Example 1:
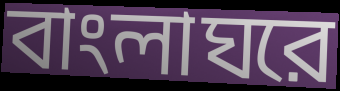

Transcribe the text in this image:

বাংলাঘরে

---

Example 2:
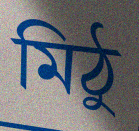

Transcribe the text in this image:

মিঠু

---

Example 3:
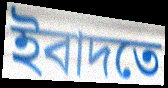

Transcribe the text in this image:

ইবাদতে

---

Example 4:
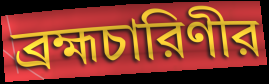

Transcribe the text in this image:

ব্রহ্মচারিণীর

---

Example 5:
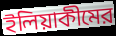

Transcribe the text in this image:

ইলিয়াকীমের